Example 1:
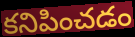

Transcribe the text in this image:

కనిపించడం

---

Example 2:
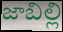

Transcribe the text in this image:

జాబిల్లి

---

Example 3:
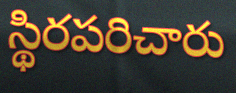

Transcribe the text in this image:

స్థిరపరిచారు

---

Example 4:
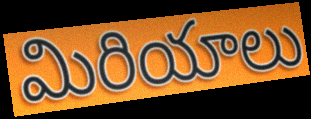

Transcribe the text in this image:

మిరియాలు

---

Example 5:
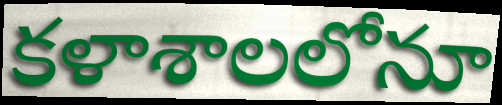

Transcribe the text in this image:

కళాశాలలోనూ